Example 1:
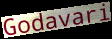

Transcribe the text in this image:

Godavari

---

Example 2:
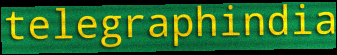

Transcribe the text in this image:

telegraphindia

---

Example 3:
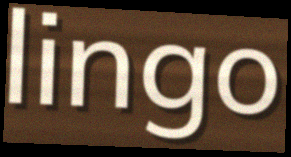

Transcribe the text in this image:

lingo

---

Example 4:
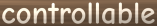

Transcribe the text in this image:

controllable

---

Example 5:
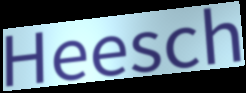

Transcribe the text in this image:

Heesch